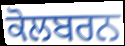
ਕੋਲਬਰਨ